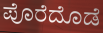
ಪೊರೆದೊಡೆ